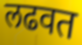
लढवत